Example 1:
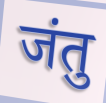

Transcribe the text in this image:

जंतु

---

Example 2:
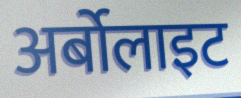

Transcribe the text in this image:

अर्बोलाइट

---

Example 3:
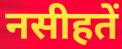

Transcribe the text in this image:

नसीहतें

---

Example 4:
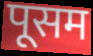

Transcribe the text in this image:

पूसम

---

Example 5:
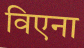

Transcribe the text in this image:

विएना